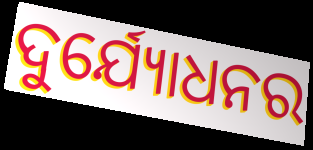
ଦୁର୍ଯ୍ୟୋଧନର